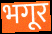
भगूर